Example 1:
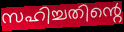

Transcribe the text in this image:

സഹിച്ചതിന്റെ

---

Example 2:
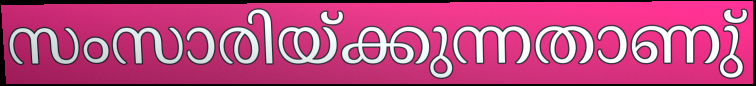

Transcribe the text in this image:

സംസാരിയ്ക്കുന്നതാണു്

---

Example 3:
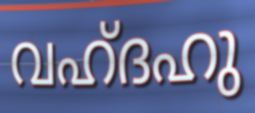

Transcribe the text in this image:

വഹ്ദഹു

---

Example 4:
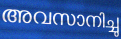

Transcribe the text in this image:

അവസാനിച്ചു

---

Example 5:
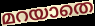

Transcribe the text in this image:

മറയാതെ